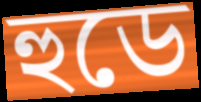
হুডে